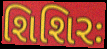
શિશિરઃ